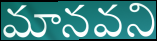
మానవని